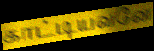
காட்டியவனே